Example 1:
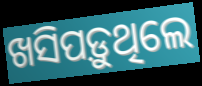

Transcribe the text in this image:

ଖସିପଡ଼ୁଥିଲେ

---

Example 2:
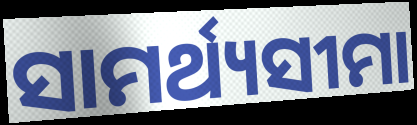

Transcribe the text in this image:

ସାମର୍ଥ୍ୟସୀମା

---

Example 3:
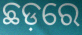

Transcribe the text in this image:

ଛଡ଼ରେ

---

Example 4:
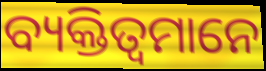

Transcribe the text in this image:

ବ୍ୟକ୍ତିତ୍ୱମାନେ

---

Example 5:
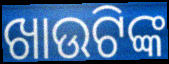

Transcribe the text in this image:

ଖାଉଟିଙ୍କ